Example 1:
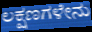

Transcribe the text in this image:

ಲಕ್ಷಣಗಳೇನು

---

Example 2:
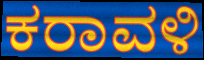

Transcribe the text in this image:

ಕರಾವಳಿ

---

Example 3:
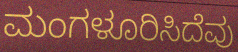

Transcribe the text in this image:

ಮಂಗಳೂರಿಸಿದೆವು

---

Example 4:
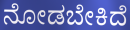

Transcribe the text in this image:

ನೋಡಬೇಕಿದೆ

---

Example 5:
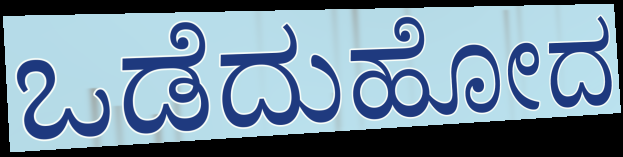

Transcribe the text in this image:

ಒಡೆದುಹೋದ